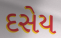
દસેય